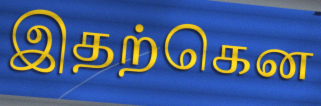
இதற்கென